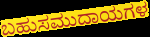
ಬಹುಸಮುದಾಯಗಳ